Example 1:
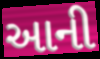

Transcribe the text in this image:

આની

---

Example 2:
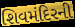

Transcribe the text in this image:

શિવમંદિરની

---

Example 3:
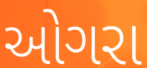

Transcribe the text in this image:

ઓગરા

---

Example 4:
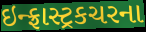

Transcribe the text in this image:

ઇન્ફ્રાસ્ટ્રકચરના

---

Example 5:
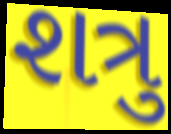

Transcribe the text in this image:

શત્રુ